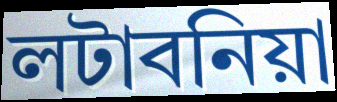
লটাবনিয়া